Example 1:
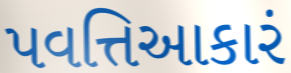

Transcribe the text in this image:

પવત્તિઆકારં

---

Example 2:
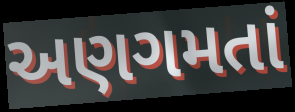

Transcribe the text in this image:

અણગમતાં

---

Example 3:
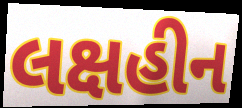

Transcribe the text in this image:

લક્ષહીન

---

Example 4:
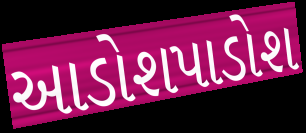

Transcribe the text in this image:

આડોશપાડોશ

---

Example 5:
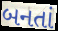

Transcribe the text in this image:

બનતાં